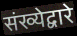
संख्येद्वारे